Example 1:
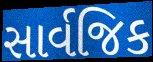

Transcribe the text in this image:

સાર્વજિક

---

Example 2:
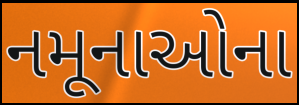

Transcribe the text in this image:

નમૂનાઓના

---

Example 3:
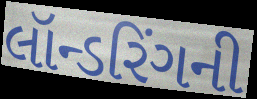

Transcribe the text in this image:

લૉન્ડરિંગની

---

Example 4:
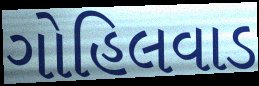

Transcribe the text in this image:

ગોહિલવાડ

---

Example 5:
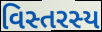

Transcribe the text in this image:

વિસ્તરસ્ય